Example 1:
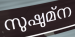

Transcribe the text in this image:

സുഷുമ്ന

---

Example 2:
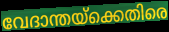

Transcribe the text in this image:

വേദാന്തയ്ക്കെതിരെ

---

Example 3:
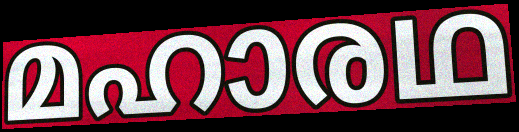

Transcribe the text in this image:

മഹാരഥ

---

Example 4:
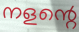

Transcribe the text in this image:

നളന്റെ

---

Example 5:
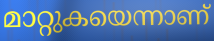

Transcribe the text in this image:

മാറ്റുകയെന്നാണ്